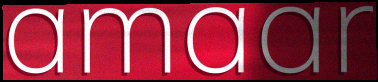
amaar